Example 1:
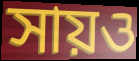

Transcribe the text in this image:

সায়ও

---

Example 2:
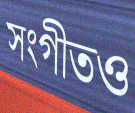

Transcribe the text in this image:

সংগীতও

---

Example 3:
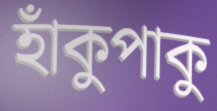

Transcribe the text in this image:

হাঁকুপাকু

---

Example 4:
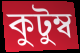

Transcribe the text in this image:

কুটুম্ব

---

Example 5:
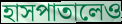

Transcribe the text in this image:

হাসপাতালেও